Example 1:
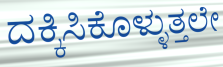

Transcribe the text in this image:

ದಕ್ಕಿಸಿಕೊಳ್ಳುತ್ತಲೇ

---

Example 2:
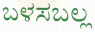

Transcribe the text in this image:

ಬಳಸಬಲ್ಲ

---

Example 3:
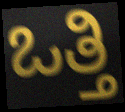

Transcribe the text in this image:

ಒತ್ತಿ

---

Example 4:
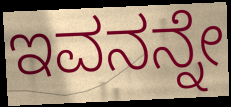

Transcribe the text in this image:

ಇವನನ್ನೇ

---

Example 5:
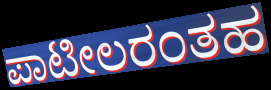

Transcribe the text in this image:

ಪಾಟೀಲರಂತಹ